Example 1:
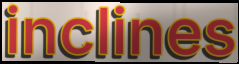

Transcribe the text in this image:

inclines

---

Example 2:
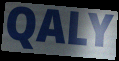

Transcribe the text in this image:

QALY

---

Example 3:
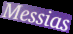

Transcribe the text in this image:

Messias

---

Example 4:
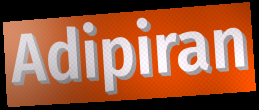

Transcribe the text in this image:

Adipiran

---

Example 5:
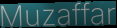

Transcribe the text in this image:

Muzaffar